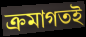
ক্রমাগতই